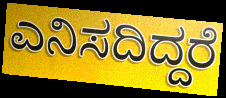
ಎನಿಸದಿದ್ದರೆ